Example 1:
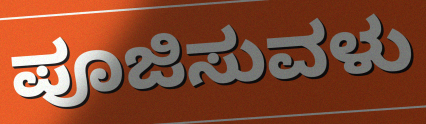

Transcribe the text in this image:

ಪೂಜಿಸುವಳು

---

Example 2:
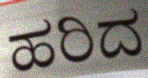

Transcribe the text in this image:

ಹರಿದ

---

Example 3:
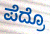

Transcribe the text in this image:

ಪೆದ್ರೊ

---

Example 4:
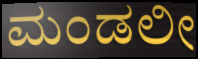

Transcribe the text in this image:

ಮಂಡಲೀ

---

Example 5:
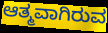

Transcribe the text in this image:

ಆತ್ಮವಾಗಿರುವ